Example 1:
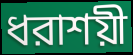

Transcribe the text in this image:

ধরাশয়ী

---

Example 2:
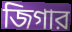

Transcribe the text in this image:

জিগার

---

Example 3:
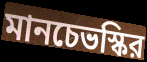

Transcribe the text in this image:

মানচেভস্কির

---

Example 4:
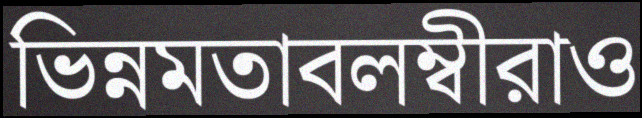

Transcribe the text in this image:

ভিন্নমতাবলম্বীরাও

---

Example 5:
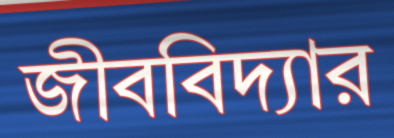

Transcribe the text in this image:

জীববিদ্যার